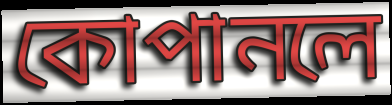
কোপানলে